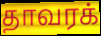
தாவரக்